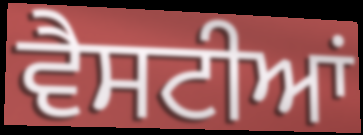
ਵੈਸਟੀਆਂ